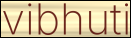
vibhuti